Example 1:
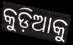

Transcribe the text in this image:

କୁଡ଼ିଆକୁ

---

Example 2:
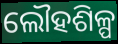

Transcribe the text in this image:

ଲୌହଶିଳ୍ପ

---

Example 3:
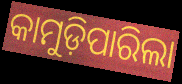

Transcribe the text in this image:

କାମୁଡ଼ିପାରିଲା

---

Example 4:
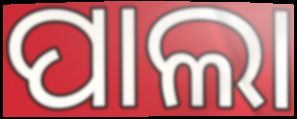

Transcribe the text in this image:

ପାଲା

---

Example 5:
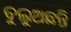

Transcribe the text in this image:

ବୁଲୁଅଛନ୍ତି